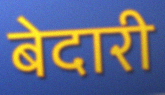
बेदारी